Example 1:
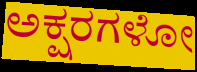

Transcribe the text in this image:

ಅಕ್ಷರಗಳೋ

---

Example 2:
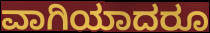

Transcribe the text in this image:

ವಾಗಿಯಾದರೂ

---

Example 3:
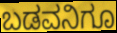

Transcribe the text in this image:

ಬಡವನಿಗೂ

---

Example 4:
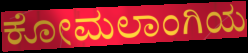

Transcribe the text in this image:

ಕೋಮಲಾಂಗಿಯ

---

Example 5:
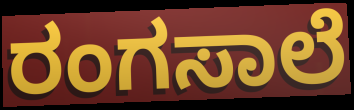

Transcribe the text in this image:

ರಂಗಸಾಲೆ